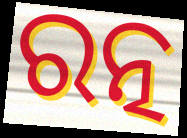
ରତ୍ନ